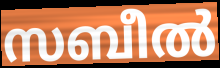
സബീൽ